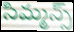
సిమ్మన్స్